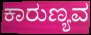
ಕಾರುಣ್ಯವ